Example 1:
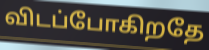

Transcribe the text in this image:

விடப்போகிறதே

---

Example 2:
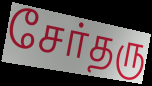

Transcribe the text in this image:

சேர்தரு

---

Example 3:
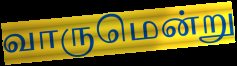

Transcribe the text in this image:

வாருமென்று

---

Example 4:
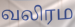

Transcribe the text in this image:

வலிரம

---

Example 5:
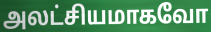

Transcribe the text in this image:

அலட்சியமாகவோ